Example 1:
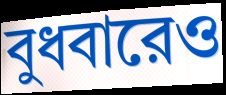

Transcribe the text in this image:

বুধবারেও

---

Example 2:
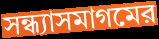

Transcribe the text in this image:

সন্ধ্যাসমাগমের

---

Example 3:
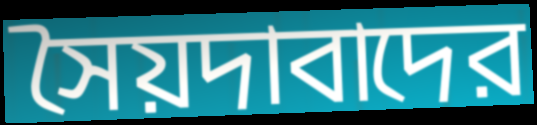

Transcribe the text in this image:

সৈয়দাবাদের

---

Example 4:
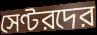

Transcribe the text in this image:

সেণ্টরদের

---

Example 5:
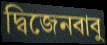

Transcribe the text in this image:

দ্বিজেনবাবু